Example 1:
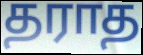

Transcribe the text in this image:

தராத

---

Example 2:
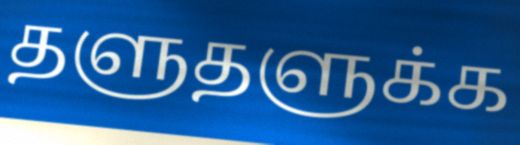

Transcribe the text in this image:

தளுதளுக்க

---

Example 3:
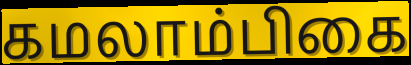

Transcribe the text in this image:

கமலாம்பிகை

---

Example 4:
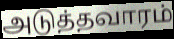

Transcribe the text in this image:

அடுத்தவாரம்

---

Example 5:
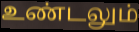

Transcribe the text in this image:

உண்டலும்